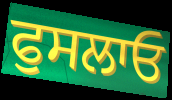
ਫੁਸਲਾਓ